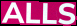
ALLS